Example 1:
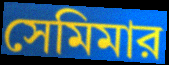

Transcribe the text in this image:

সেমিমার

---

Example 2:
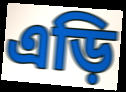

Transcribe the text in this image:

এড়ি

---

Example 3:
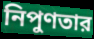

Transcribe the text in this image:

নিপুণতার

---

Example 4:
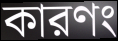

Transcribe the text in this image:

কারণং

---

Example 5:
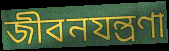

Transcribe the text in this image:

জীবনযন্ত্রণা